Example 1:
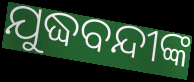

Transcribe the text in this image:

ଯୁଦ୍ଧବନ୍ଦୀଙ୍କ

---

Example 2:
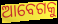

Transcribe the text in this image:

ଆବେଗକୁ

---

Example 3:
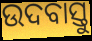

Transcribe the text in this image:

ଉଦବାସ୍ତୁ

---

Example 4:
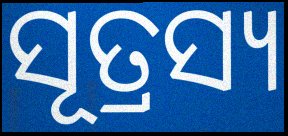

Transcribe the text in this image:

ସୂତ୍ରସ୍ୟ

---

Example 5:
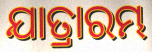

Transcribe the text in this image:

ଯାତ୍ରାରମ୍ଭ